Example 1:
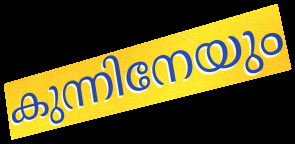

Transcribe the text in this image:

കുന്നിനേയും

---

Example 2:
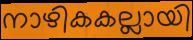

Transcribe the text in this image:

നാഴികകല്ലായി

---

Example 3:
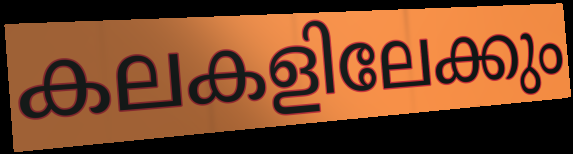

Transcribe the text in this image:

കലകളിലേക്കും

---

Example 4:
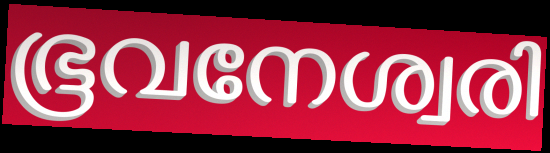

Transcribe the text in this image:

ഭൂവനേശ്വരി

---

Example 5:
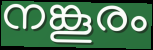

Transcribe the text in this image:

നങ്കൂരം